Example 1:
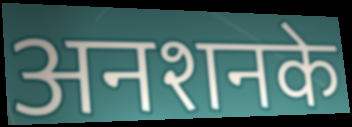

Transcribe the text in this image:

अनशनके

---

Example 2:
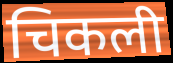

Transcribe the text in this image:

चिकली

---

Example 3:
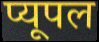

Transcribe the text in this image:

प्यूपल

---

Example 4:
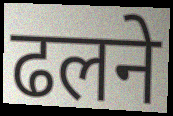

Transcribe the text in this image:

ढलने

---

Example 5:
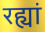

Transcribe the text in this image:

रह्यां